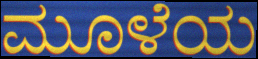
ಮೂಳೆಯ